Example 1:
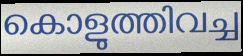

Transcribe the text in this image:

കൊളുത്തിവച്ച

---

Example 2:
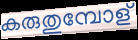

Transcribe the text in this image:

കരുതുമ്പോള്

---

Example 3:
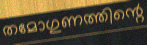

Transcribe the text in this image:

തമോഗുണത്തിന്റെ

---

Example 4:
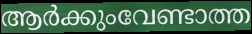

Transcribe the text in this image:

ആർക്കുംവേണ്ടാത്ത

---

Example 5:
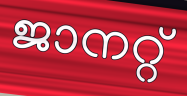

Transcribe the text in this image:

ജാനറ്റ്